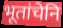
भूतांचेनि